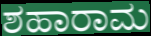
ಶಹಾರಾಮ